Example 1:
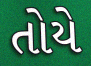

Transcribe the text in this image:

તોયે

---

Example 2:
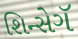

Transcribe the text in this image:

શિન્સેગૅ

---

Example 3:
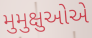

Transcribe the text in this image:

મુમુક્ષુઓએ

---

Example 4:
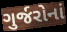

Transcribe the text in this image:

ગુર્જરોનાં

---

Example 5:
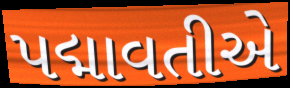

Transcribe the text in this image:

પદ્માવતીએ